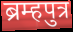
ब्रम्हपुत्र